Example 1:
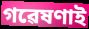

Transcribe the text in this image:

গৱেষণাই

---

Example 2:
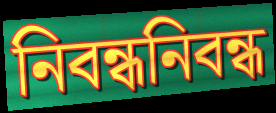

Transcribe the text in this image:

নিবন্ধনিবন্ধ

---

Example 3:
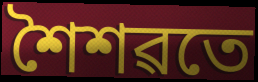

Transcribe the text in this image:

শৈশৱতে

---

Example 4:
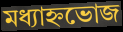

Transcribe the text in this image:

মধ্যাহ্নভোজ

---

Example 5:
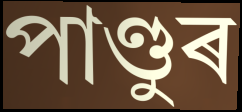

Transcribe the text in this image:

পাণ্ডুৰ